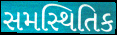
સમસ્થિતિક